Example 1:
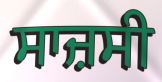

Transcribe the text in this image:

ਸਾਜ਼ਸੀ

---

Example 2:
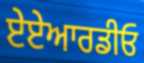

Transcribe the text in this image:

ਏਏਆਰਡੀਓ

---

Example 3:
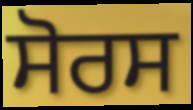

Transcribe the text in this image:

ਸੋਰਸ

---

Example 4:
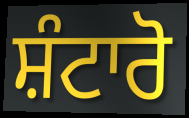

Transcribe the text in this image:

ਸ਼ੰਟਾਰੋ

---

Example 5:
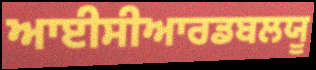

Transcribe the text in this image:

ਆਈਸੀਆਰਡਬਲਯੂ